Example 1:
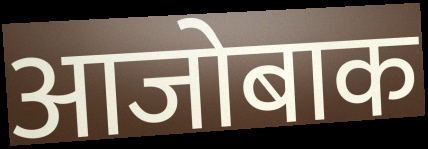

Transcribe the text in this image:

आजोबाक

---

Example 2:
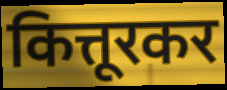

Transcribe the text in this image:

कित्तूरकर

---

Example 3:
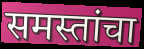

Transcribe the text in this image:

समस्तांचा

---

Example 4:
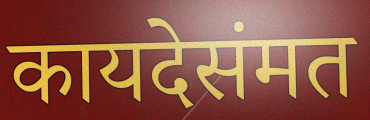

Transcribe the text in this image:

कायदेसंमत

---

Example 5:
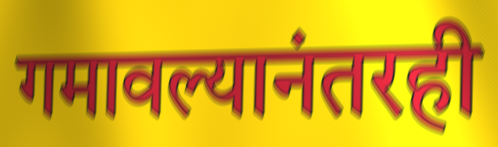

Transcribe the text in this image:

गमावल्यानंतरही